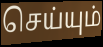
செய்யும்